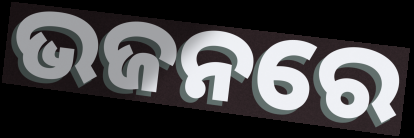
ଭଜନରେ